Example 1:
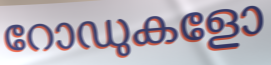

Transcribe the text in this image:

റോഡുകളോ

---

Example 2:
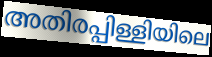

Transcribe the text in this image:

അതിരപ്പിള്ളിയിലെ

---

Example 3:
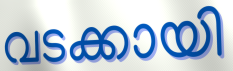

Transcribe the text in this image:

വടക്കായി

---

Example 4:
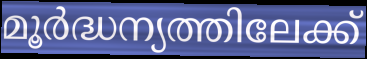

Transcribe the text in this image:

മൂർദ്ധന്യത്തിലേക്ക്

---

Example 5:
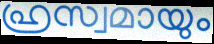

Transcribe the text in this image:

ഹ്രസ്വമായും